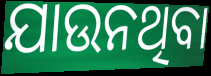
ଯାଉନଥିବା